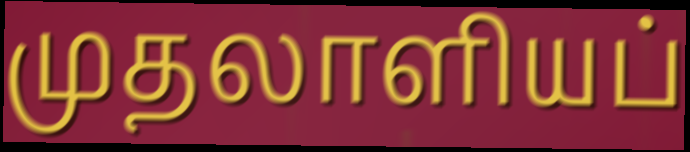
முதலாளியப்